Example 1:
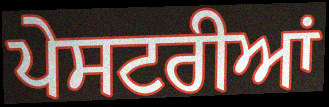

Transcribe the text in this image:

ਪੇਸਟਰੀਆਂ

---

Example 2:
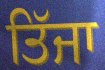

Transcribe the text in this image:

ਤਿੱਜਾ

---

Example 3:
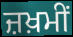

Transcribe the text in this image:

ਜ਼ਖ਼ਮੀਂ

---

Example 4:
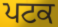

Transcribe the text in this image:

ਪਟਕ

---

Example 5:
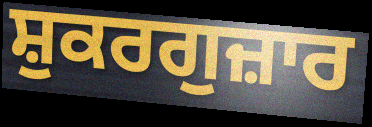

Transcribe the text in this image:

ਸ਼ੁਕਰਗੁਜ਼ਾਰ